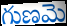
గుణమె